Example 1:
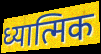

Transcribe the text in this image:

ध्यात्मिक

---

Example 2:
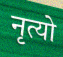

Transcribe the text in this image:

नृत्यो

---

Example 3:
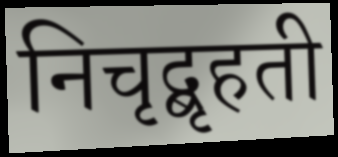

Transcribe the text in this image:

निचृद्बृहती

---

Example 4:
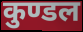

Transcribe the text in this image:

कुण्डल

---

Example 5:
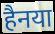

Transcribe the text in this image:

हैनया